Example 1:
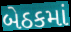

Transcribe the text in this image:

બેઠકમાં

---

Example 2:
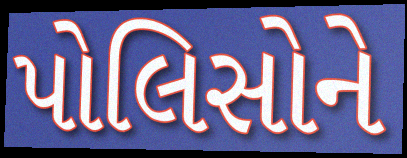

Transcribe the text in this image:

પોલિસોને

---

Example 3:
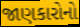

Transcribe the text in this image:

જાણકારોનો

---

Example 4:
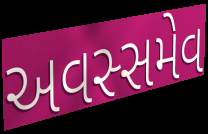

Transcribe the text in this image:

અવસ્સમેવ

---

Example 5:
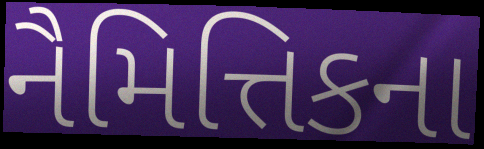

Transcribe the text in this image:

નૈમિત્તિકના